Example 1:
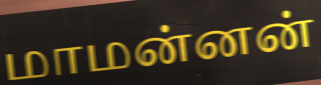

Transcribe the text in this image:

மாமன்னன்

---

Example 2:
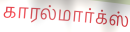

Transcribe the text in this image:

காரல்மார்க்ஸ்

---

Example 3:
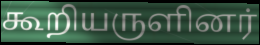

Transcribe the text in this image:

கூறியருளினர்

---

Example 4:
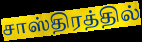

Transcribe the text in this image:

சாஸ்திரத்தில்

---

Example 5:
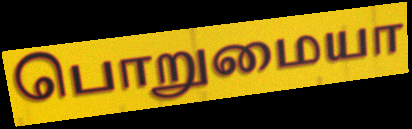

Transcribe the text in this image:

பொறுமையா